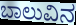
ಬಾಲುವಿನ